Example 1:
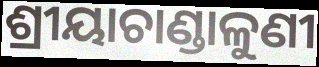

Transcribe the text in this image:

ଶ୍ରୀୟାଚାଣ୍ଡାଳୁଣୀ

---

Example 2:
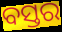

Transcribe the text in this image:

ବସ୍ତର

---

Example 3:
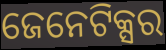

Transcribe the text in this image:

ଜେନେଟିକ୍ସର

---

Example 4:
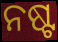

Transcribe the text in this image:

ନଷ୍ଟ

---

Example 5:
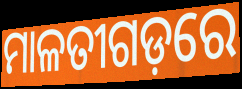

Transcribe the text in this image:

ମାଳତୀଗଡ଼ରେ